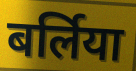
बर्लिया